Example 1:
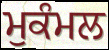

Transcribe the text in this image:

ਮੁਕੰਮਲ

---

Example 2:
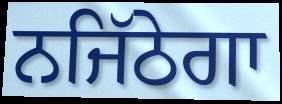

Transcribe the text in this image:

ਨਜਿੱਠੇਗਾ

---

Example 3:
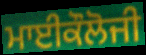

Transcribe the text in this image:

ਮਾਈਕੌਲੋਜੀ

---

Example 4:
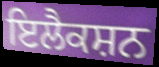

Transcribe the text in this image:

ਇਲੈਕਸ਼ਨ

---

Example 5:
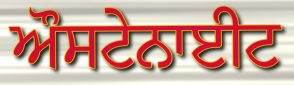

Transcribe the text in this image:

ਔਸਟੇਨਾਈਟ